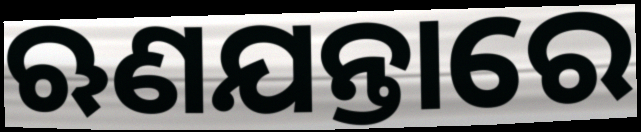
ଋଣଯନ୍ତାରେ